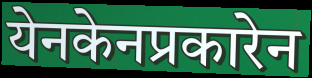
येनकेनप्रकारेन